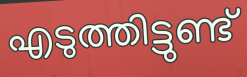
എടുത്തിട്ടുണ്ട്